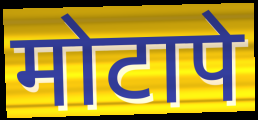
मोटापे